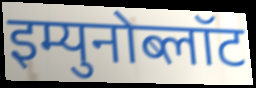
इम्युनोब्लॉट